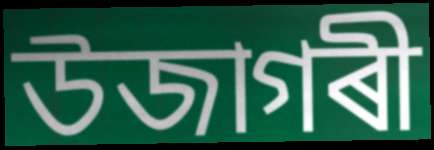
উজাগৰী